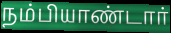
நம்பியாண்டார்